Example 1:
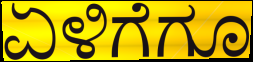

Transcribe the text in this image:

ಏಳಿಗೆಗೂ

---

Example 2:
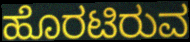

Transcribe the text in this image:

ಹೊರಟಿರುವ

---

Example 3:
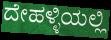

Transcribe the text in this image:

ದೇಹಳ್ಳಿಯಲ್ಲಿ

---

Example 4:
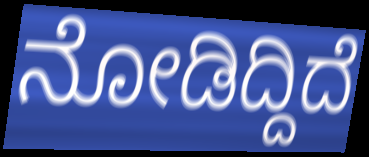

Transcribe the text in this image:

ನೋಡಿದ್ದಿದೆ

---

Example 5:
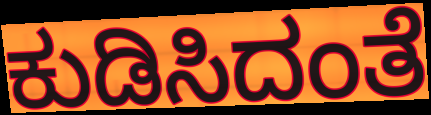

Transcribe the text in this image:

ಕುಡಿಸಿದಂತೆ